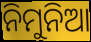
ନିମୁନିଆ